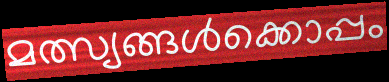
മത്സ്യങ്ങൾക്കൊപ്പം